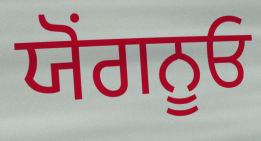
ਯੋਂਗਨੂਓ